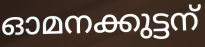
ഓമനക്കുട്ടന്